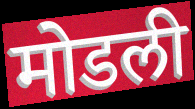
मोडली